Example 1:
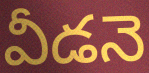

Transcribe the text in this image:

వీడనె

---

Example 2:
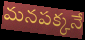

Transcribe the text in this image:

మనపక్కనే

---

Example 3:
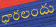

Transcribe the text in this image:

ధారలందు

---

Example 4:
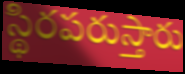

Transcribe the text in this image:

స్థిరపరుస్తారు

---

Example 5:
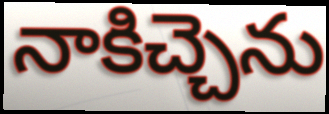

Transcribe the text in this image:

నాకిచ్చెను